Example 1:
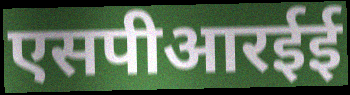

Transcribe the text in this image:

एसपीआरईई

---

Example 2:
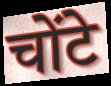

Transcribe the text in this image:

चोंटे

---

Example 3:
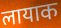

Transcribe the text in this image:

लायाक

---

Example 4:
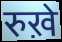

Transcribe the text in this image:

रुख़े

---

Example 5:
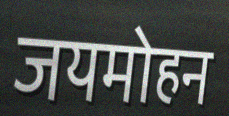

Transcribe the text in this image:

जयमोहन